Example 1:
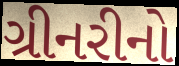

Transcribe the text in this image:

ગ્રીનરીનો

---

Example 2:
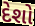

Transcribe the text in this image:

દેશો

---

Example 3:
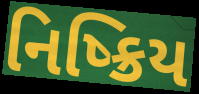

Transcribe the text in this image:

નિષ્ક્રિય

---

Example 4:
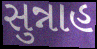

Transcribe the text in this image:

સુન્નાહ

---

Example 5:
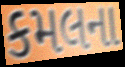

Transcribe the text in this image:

કમલના